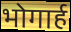
भोगार्ह